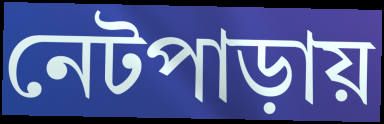
নেটপাড়ায়